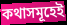
কথাসমূহেই